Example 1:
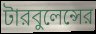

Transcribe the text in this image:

টারবুলেন্সের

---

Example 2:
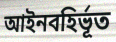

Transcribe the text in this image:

আইনবহির্ভূত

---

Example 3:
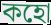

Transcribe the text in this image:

কহো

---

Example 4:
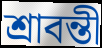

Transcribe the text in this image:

শ্রাবন্তী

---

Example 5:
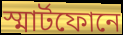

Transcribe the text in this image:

স্মার্টফোনে